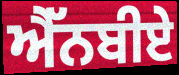
ਐੱਨਬੀਏ